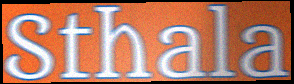
Sthala